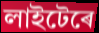
লাইটেৰে